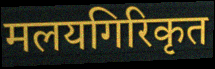
मलयगिरिकृत